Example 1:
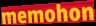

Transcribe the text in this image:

memohon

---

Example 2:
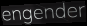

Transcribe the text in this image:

engender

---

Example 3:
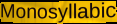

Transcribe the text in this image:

Monosyllabic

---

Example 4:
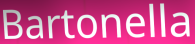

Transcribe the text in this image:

Bartonella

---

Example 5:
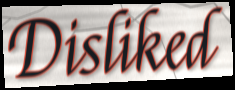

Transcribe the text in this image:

Disliked